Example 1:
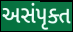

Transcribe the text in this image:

અસંપૃક્ત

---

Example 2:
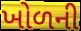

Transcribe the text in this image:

ખોળની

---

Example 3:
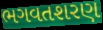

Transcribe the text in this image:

ભગવતશરણ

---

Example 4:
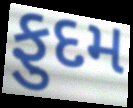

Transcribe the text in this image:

ફુદમ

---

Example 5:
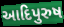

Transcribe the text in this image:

આદિપુરુષ